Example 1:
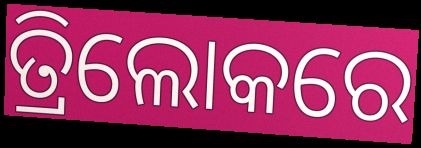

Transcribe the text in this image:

ତ୍ରିଲୋକରେ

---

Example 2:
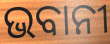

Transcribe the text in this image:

ଭବାନୀ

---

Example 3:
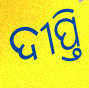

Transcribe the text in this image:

ଦୀପ୍ତି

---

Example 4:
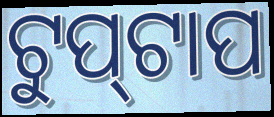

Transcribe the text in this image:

ଟୁପ୍‌ଟାପ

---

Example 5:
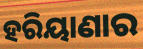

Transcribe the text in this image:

ହରିୟାଣାର